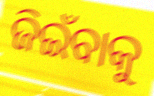
ଜିଇଁବାକୁ